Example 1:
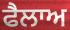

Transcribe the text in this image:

ਫੈਲਾਅ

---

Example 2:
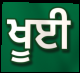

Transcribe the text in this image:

ਖੂਈ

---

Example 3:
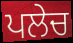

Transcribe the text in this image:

ਪਲੇਚ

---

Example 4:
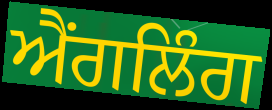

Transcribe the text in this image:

ਐਂਗਲਿੰਗ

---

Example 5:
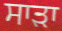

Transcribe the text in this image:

ਸਾੜਾ